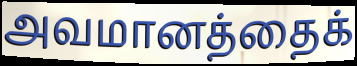
அவமானத்தைக்